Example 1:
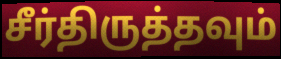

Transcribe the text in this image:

சீர்திருத்தவும்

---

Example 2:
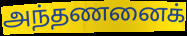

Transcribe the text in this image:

அந்தணனைக்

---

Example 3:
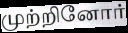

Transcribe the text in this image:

முற்றினோர்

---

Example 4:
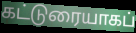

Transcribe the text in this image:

கட்டுரையாகப்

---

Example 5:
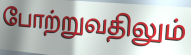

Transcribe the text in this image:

போற்றுவதிலும்